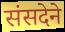
संसदेने